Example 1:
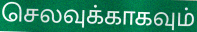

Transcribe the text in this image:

செலவுக்காகவும்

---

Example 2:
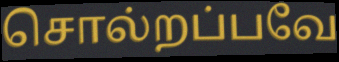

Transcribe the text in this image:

சொல்றப்பவே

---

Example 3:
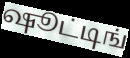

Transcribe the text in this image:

ஷூட்டிங்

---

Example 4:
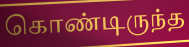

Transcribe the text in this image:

கொண்டிருந்த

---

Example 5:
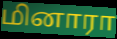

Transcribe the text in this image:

மினாரா